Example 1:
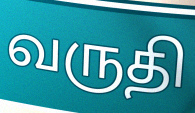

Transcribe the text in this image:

வருதி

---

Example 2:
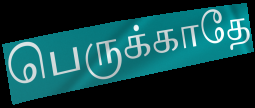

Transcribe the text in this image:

பெருக்காதே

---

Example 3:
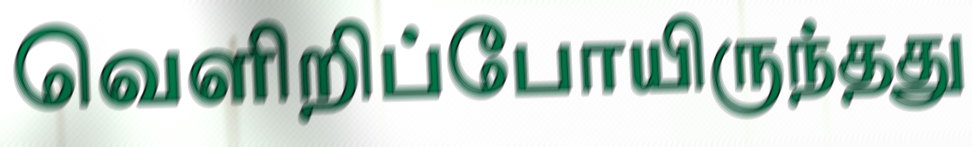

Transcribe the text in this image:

வெளிறிப்போயிருந்தது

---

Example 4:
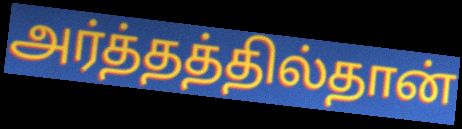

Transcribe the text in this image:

அர்த்தத்தில்தான்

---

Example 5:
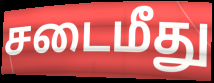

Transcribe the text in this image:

சடைமீது